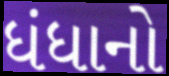
ધંધાનો